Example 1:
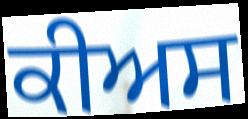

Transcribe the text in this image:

ਕੀਅਸ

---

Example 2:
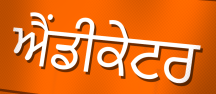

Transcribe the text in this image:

ਐਂਡੀਕੇਟਰ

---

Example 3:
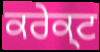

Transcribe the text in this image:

ਕਰੇਕ੍ਟ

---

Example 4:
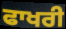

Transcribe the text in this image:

ਫਾਖਰੀ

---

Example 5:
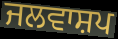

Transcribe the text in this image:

ਜਲਵਾਸ਼ਪ